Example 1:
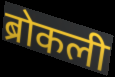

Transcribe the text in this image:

ब्रोकली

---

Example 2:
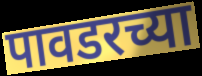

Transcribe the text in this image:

पावडरच्या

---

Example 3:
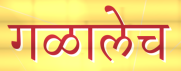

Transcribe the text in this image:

गळालेच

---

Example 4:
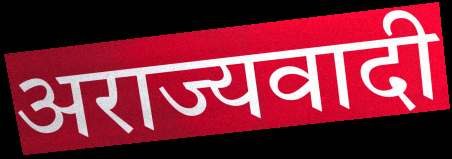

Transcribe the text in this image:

अराज्यवादी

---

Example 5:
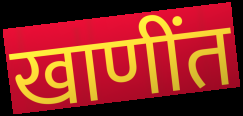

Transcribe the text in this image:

खाणींत